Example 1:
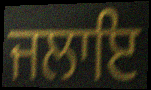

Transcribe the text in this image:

ਜਲਾਇ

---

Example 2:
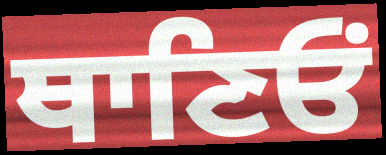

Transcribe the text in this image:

ਥਾਣਿਓਂ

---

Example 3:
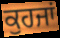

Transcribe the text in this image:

ਕੁਹਜਾਂ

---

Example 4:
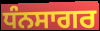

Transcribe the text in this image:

ਧੰਨਸਾਗਰ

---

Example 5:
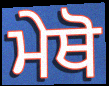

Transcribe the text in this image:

ਮੇਥੋ